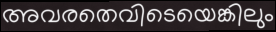
അവരതെവിടെയെങ്കിലും